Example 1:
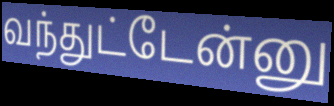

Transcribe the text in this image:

வந்துட்டேன்னு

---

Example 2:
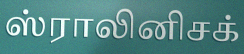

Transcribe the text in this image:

ஸ்ராலினிசக்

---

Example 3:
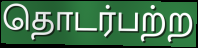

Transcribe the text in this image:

தொடர்பற்ற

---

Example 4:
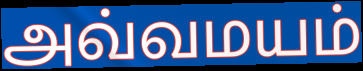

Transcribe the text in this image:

அவ்வமயம்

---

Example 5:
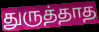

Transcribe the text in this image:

துருத்தாத